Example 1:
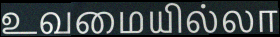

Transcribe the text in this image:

உவமையில்லா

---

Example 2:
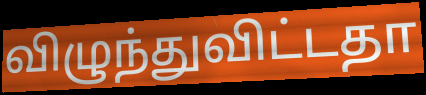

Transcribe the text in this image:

விழுந்துவிட்டதா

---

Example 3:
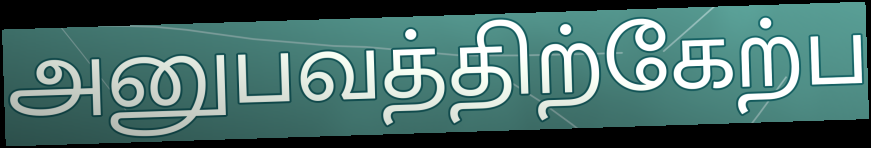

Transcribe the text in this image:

அனுபவத்திற்கேற்ப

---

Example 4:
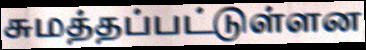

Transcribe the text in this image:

சுமத்தப்பட்டுள்ளன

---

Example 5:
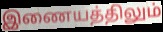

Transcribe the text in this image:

இணையத்திலும்